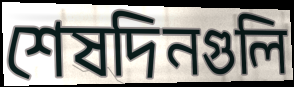
শেষদিনগুলি